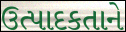
ઉત્પાદકતાને